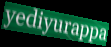
yediyurappa